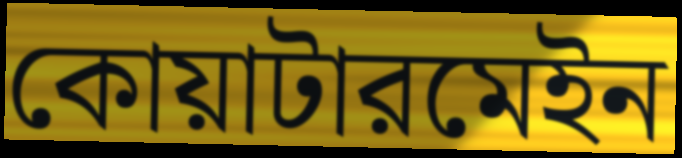
কোয়াটারমেইন